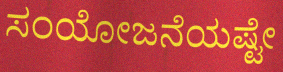
ಸಂಯೋಜನೆಯಷ್ಟೇ